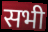
सभी